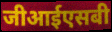
जीआईएसबी